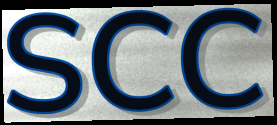
SCC